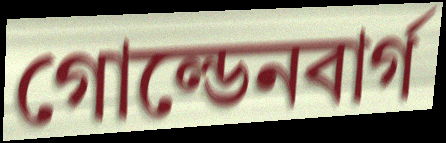
গোল্ডেনবার্গ